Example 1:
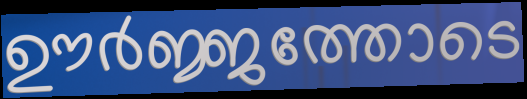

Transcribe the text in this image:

ഊർജ്ജത്തോടെ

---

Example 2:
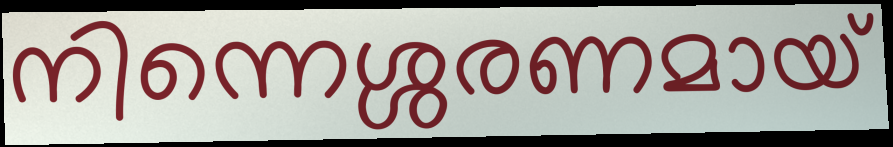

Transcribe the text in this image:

നിന്നെശ്ശരണമായ്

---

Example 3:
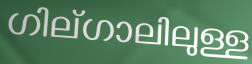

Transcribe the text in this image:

ഗില്ഗാലിലുള്ള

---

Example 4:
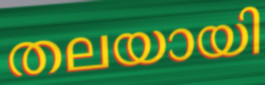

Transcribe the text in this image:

തലയായി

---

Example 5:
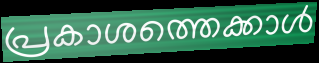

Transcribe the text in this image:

പ്രകാശത്തെക്കാൾ